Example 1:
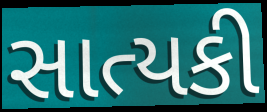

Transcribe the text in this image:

સાત્યકી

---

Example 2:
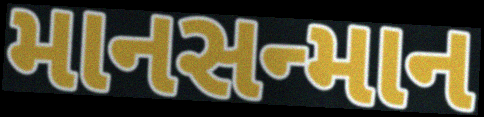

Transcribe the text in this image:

માનસન્માન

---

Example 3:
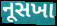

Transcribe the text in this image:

નૂસખા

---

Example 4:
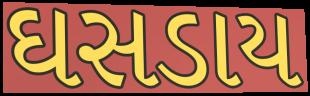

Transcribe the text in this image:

ઘસડાય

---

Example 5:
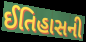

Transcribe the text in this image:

ઈતિહાસની